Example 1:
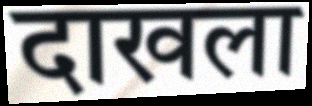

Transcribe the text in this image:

दाखला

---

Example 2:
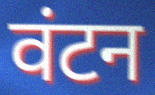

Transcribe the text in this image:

वंटन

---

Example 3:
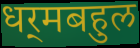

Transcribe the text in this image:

धर्मबहुल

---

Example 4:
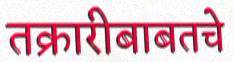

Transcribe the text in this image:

तक्रारीबाबतचे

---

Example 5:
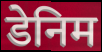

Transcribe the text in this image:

डेनिम